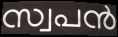
സ്വപൻ